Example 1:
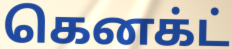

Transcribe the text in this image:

கெனக்ட்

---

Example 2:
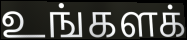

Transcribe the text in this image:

உங்களக்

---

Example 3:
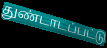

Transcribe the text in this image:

துண்டாடப்பட்டு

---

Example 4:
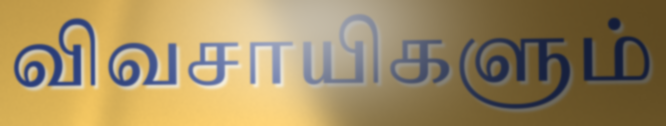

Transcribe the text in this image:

விவசாயிகளும்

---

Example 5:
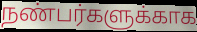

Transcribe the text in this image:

நண்பர்களுக்காக